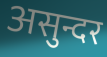
असुन्दर